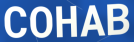
COHAB